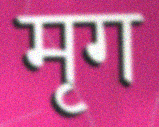
मृग